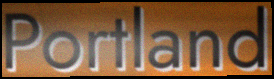
Portland